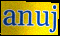
anuj